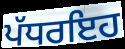
ਪੱਧਰਇਹ